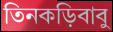
তিনকড়িবাবু